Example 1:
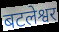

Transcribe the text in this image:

बटलेश्वर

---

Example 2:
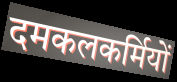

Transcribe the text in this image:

दमकलकर्मियों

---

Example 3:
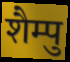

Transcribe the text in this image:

शैम्पु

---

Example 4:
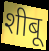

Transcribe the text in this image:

शीबू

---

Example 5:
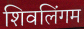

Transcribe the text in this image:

शिवलिंगम